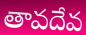
తావదేవ